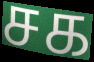
சக